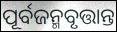
ପୂର୍ବଜନ୍ମବୃତ୍ତାନ୍ତ